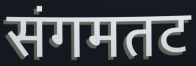
संगमतट